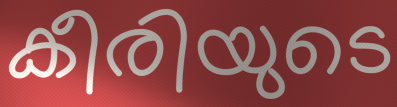
കീരിയുടെ